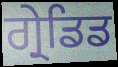
ਗ੍ਰੇਡਿਡ